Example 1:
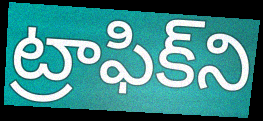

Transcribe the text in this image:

ట్రాఫిక్‌ని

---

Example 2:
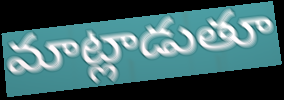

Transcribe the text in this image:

మాట్లాడుతూ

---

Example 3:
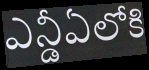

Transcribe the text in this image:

ఎన్డీఏలోకి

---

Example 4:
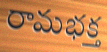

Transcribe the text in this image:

రామభక్త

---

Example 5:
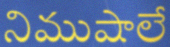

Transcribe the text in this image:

నిముషాలే